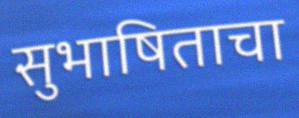
सुभाषिताचा